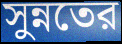
সুন্নতের